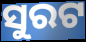
ସୁରଟ